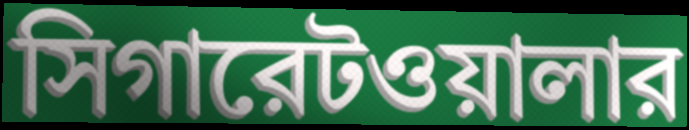
সিগারেটওয়ালার